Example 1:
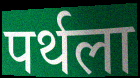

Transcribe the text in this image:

पर्थला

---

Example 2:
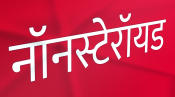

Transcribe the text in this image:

नॉनस्टेरॉयड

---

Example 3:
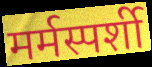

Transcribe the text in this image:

मर्मस्पर्शी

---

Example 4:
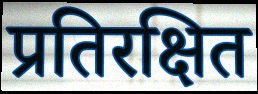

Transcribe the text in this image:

प्रतिरक्षित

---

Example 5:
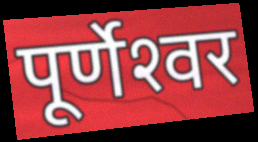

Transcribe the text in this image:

पूर्णेश्वर